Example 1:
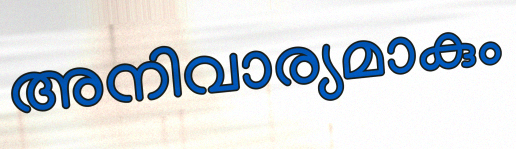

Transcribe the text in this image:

അനിവാര്യമാകും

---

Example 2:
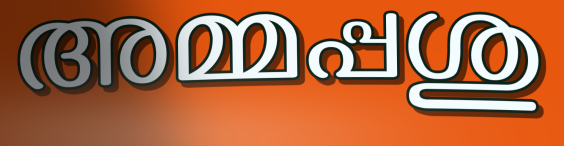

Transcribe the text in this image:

അമ്മപ്പശു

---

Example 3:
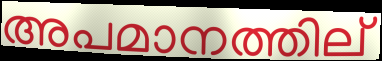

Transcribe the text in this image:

അപമാനത്തില്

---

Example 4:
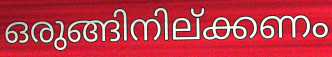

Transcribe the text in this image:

ഒരുങ്ങിനില്ക്കണം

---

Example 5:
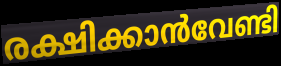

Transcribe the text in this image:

രക്ഷിക്കാൻവേണ്ടി